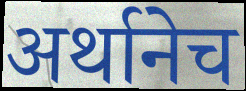
अर्थानेच